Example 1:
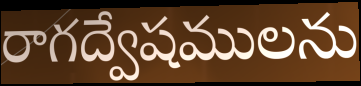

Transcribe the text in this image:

రాగద్వేషములను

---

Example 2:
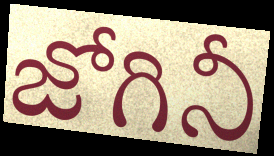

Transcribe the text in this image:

జోగినీ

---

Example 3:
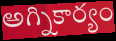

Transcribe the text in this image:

అగ్నికార్యం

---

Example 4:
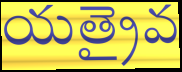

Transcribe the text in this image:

యత్రైవ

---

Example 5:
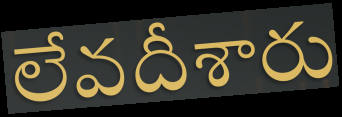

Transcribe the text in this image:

లేవదీశారు